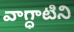
వాగ్ధాటిని